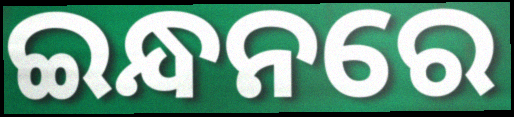
ଇନ୍ଧନରେ